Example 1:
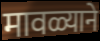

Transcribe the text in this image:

मावळ्याने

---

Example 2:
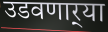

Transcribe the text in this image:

उडवणार्या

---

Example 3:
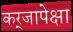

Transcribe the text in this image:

कर्जापेक्षा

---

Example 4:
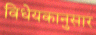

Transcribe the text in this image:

विधेयकानुसार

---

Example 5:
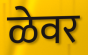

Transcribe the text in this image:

ळेवर